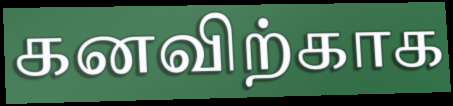
கனவிற்காக